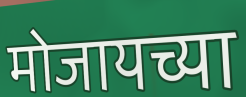
मोजायच्या